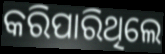
କରିପାରିଥିଲେ